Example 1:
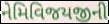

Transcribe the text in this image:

નેમિવિજયજીની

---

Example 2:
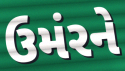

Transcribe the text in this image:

ઉમંરને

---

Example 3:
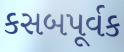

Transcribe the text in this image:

કસબપૂર્વક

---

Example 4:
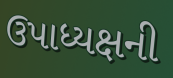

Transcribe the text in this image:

ઉપાધ્યક્ષની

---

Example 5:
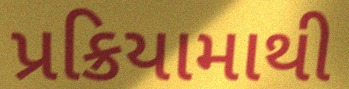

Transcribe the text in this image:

પ્રક્રિયામાથી